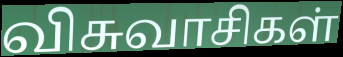
விசுவாசிகள்